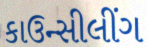
કાઉન્સીલીંગ